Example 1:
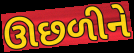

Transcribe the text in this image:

ઊછળીને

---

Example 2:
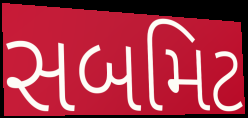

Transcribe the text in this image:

સબમિટ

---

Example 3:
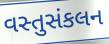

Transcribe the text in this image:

વસ્તુસંકલન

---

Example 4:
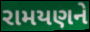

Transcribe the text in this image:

રામયણને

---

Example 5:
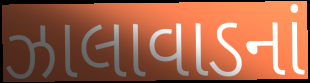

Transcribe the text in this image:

ઝાલાવાડનાં